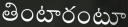
తింటారంటూ